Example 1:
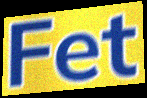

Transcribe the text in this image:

Fet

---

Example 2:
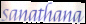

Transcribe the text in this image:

sanathana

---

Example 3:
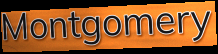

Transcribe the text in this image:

Montgomery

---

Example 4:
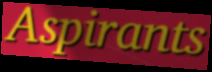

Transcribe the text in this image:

Aspirants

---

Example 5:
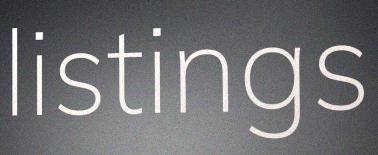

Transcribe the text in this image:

listings